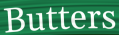
Butters